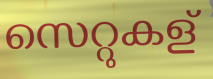
സെറ്റുകള്